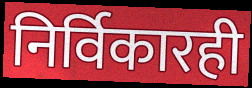
निर्विकारही